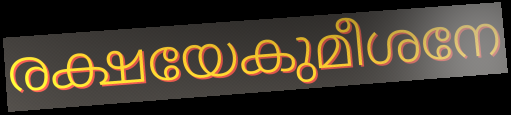
രക്ഷയേകുമീശനേ